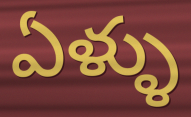
ఏళ్ళు